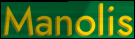
Manolis